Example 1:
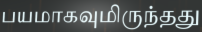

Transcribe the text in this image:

பயமாகவுமிருந்தது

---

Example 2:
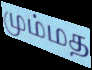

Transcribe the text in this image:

மும்மத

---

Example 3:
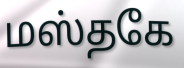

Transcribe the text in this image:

மஸ்தகே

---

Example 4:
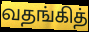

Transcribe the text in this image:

வதங்கித்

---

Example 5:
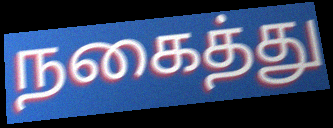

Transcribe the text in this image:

நகைத்து